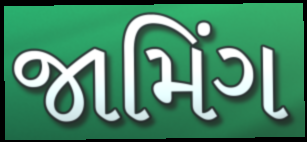
જામિંગ